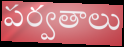
పర్వతాలు